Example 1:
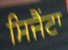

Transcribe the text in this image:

ਸਿਜੈਂਟਾ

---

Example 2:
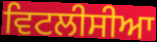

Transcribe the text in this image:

ਵਿਟਲੀਸੀਆ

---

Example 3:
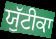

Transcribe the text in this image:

ਯੁੱਟੀਕਾ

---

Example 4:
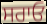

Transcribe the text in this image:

ਸਰਾਓ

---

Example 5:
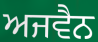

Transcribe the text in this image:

ਅਜਵੈਨ